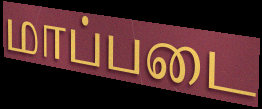
மாப்படை